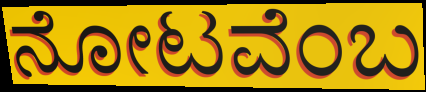
ನೋಟವೆಂಬ